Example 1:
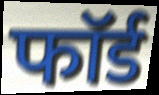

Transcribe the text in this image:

फॉर्ड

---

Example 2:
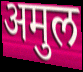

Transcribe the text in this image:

अमुल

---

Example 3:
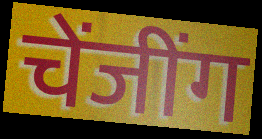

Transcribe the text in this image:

चेंजींग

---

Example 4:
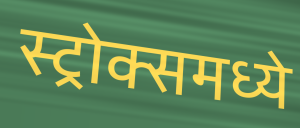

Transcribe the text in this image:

स्ट्रोक्समध्ये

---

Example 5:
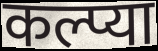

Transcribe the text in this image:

कल्प्या